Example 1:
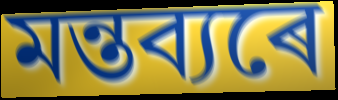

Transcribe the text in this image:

মন্তব্যৰে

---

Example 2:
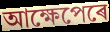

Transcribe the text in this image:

আক্ষেপেৰে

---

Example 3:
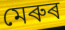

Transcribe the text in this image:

মেৰুৰ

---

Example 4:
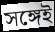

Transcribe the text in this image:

সঙ্গেই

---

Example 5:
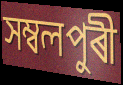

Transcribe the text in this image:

সম্বলপুৰী